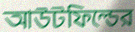
আউটফিল্ডের